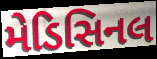
મેડિસિનલ